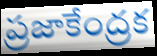
ప్రజాకేంద్రక